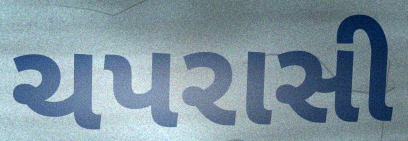
ચપરાસી